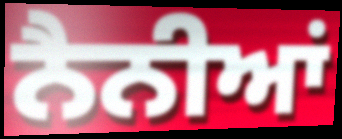
ਨੈਨੀਆਂ